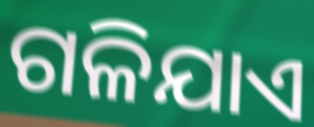
ଗଳିଯାଏ